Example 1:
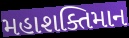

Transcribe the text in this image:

મહાશક્તિમાન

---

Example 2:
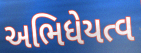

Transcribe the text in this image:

અભિધેયત્વ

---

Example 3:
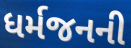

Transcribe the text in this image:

ધર્મજનની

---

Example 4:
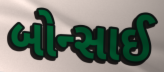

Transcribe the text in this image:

બોન્સાઈ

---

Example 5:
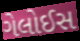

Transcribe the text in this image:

ગેલોઈસ